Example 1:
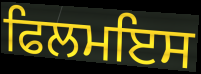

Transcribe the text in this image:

ਫਿਲਮਇਸ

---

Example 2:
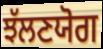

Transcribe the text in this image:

ਝੱਲਣਯੋਗ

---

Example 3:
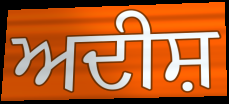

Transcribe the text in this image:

ਅਦੀਸ਼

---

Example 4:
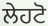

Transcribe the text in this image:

ਲੇਹਟੋ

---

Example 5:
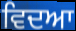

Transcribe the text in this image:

ਵਿਦਆ